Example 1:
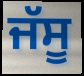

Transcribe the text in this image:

ਜੱਸੂ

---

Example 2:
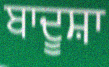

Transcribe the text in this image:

ਬਾਦੂਸ਼ਾ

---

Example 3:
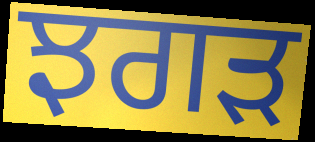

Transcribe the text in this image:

ਝਗੜ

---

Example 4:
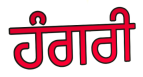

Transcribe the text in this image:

ਹੰਗਰੀ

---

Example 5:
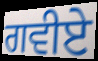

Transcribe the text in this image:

ਗਵੀਏ